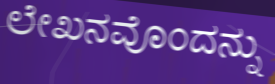
ಲೇಖನವೊಂದನ್ನು